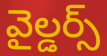
వైల్డర్స్